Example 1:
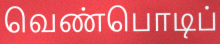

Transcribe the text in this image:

வெண்பொடிப்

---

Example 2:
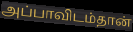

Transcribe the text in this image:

அப்பாவிடம்தான்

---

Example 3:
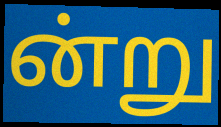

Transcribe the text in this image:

ன்று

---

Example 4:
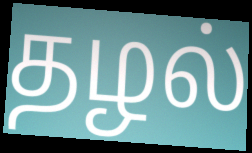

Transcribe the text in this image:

தழல்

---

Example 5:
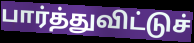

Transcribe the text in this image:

பார்த்துவிட்டுச்